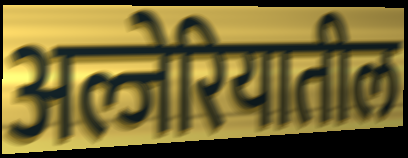
अल्जेरियातील